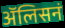
ॲलिसनं